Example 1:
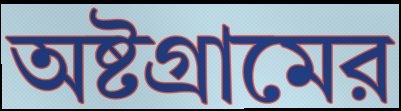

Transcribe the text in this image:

অষ্টগ্রামের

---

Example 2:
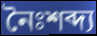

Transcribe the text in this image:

নৈঃশব্দ্য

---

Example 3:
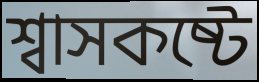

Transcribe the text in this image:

শ্বাসকষ্টে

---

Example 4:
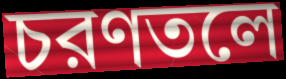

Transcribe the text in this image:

চরণতলে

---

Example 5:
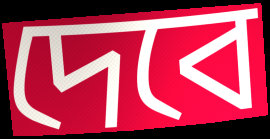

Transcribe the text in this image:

দেবে